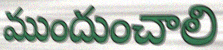
ముందుంచాలి